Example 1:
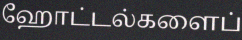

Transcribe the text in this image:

ஹோட்டல்களைப்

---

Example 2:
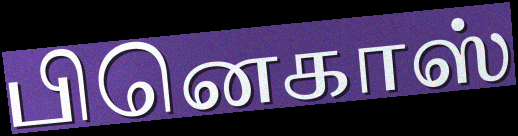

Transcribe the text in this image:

பினெகாஸ்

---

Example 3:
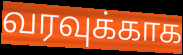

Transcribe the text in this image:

வரவுக்காக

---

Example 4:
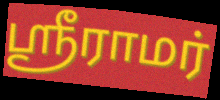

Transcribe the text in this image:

ஶ்ரீராமர்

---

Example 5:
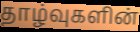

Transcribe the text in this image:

தாழ்வுகளின்